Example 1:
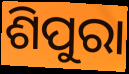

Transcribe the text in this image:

ଶିପୁରା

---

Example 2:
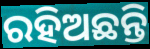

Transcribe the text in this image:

ରହିଅଛନ୍ତି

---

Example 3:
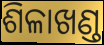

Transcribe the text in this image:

ଶିଳାଖଣ୍ଡ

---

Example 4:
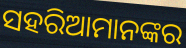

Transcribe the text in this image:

ସହରିଆମାନଙ୍କର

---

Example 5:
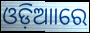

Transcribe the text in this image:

ଓଡ଼ିଆାରେ